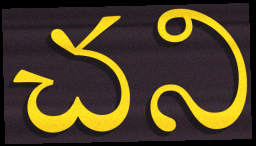
చని